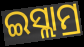
ଇସ୍ଲାମ୍ର